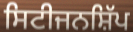
ਸਿਟੀਜਨਸ਼ਿੱਪ